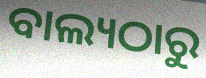
ବାଲ୍ୟଠାରୁ